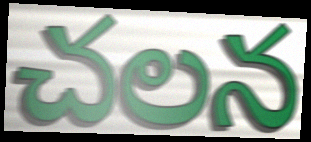
చలన